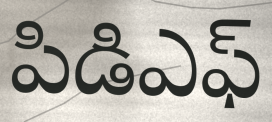
పిడిఎఫ్